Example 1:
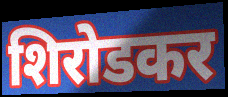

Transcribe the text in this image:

शिरोडकर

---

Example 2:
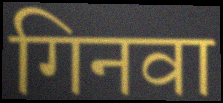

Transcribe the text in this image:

गिनवा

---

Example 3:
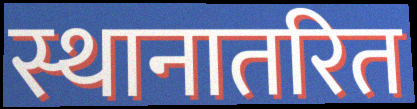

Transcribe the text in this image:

स्थानातरित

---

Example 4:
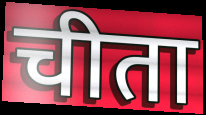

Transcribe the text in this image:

चीता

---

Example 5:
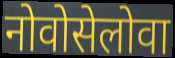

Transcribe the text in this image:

नोवोसेलोवा